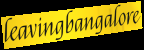
leavingbangalore